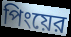
পিংয়ের